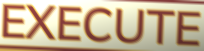
EXECUTE